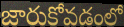
జారుకోవడంలో